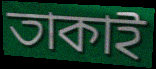
তাকাই